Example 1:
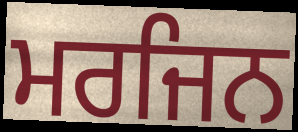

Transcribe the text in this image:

ਮਰਜਿਨ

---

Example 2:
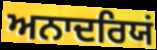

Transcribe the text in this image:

ਅਨਾਦਰਿਯਂ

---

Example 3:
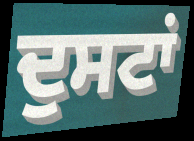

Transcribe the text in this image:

ਦੁਸਟਾਂ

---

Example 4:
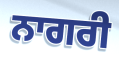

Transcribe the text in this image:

ਨਾਗਰੀ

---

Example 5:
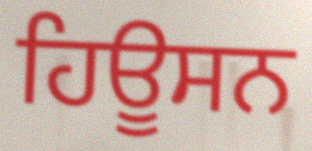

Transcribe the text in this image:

ਹਿਊਸਨ